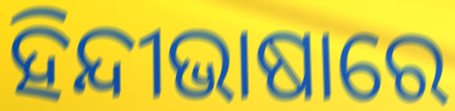
ହିନ୍ଦୀଭାଷାରେ